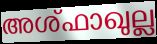
അശ്ഫാഖുല്ല